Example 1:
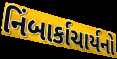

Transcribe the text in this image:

નિંબાર્કાચાર્યનો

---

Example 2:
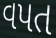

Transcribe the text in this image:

વપત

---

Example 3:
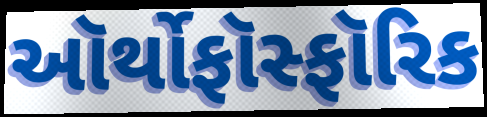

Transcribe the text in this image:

ઑર્થોફૉસ્ફૉરિક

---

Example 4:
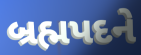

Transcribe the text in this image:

બ્રહ્મપદને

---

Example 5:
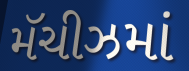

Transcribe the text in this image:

મૅચીઝમાં